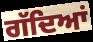
ਗੱਦਿਆਂ